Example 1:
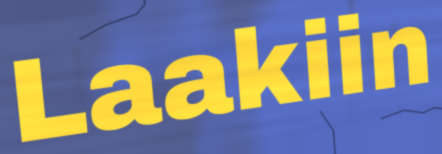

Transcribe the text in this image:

Laakiin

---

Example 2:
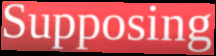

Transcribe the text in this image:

Supposing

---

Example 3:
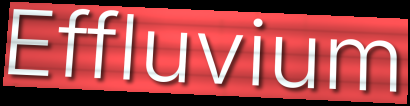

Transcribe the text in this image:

Effluvium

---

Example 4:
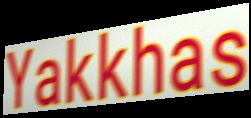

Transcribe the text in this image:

Yakkhas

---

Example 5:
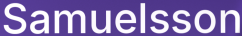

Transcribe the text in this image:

Samuelsson